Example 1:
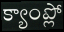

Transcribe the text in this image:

క్యాంప్లో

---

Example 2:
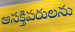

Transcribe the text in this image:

ఆసక్తిపరులను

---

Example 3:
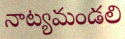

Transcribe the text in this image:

నాట్యమండలి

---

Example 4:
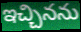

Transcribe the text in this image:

ఇచ్చినను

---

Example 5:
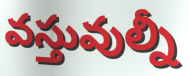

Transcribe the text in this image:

వస్తువుల్నీ